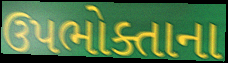
ઉપભોક્તાના